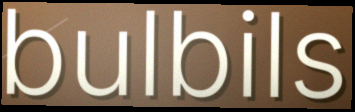
bulbils